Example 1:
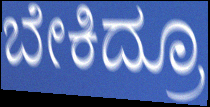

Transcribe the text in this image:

ಬೇಕಿದ್ರೂ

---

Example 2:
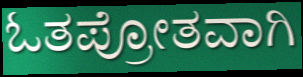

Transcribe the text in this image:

ಓತಪ್ರೋತವಾಗಿ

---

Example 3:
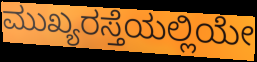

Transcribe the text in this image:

ಮುಖ್ಯರಸ್ತೆಯಲ್ಲಿಯೇ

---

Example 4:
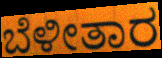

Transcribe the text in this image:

ಬೆಳೀತಾರ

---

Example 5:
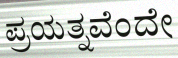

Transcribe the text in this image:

ಪ್ರಯತ್ನವೆಂದೇ